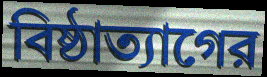
বিষ্ঠাত্যাগের